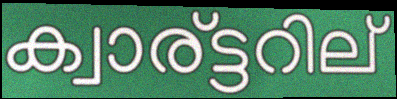
ക്വാര്ട്ടറില്